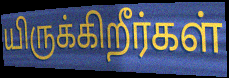
யிருக்கிறீர்கள்